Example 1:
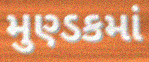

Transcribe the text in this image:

મુણ્ડકમાં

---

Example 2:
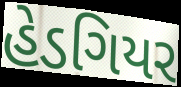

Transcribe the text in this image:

હેડગિયર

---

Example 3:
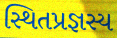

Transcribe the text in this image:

સ્થિતપ્રજ્ઞસ્ય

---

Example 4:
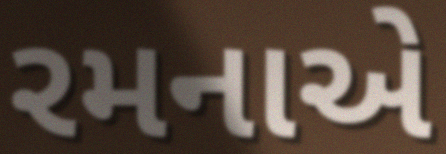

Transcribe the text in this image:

રમનાએ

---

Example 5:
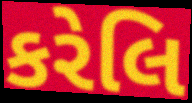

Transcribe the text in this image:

કરેલિ